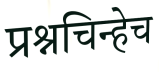
प्रश्नचिन्हेच